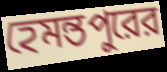
হেমন্তপুরের